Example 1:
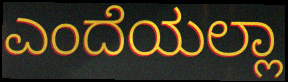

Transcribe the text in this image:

ಎಂದೆಯಲ್ಲಾ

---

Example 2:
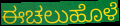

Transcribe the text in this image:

ಈಚಲುಹೊಳೆ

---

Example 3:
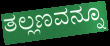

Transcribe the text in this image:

ತಲ್ಲಣವನ್ನೂ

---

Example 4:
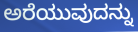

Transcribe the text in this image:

ಅರೆಯುವುದನ್ನು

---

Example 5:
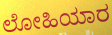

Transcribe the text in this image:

ಲೋಹಿಯಾರ